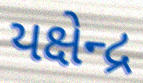
યક્ષેન્દ્ર